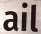
ail